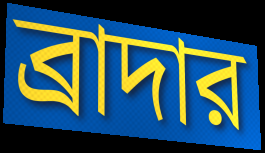
ব্রাদার